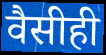
वैसीही